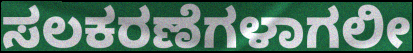
ಸಲಕರಣೆಗಳಾಗಲೀ